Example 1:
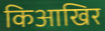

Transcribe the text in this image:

किआखिर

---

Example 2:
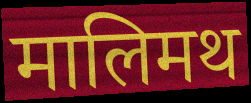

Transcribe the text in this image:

मालिमथ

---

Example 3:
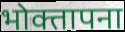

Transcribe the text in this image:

भोक्तापना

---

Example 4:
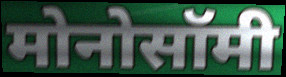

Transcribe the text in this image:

मोनोसॉमी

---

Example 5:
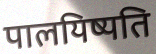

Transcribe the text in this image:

पालयिष्यति